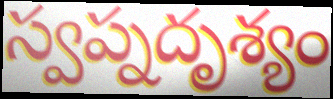
స్వప్నదృశ్యం